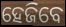
ହେଜିବେ